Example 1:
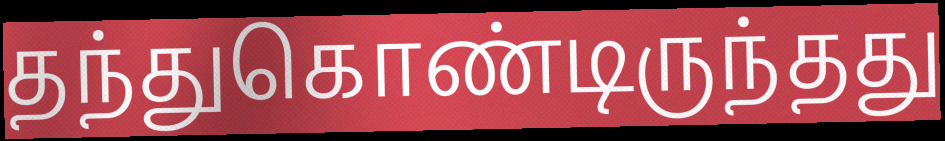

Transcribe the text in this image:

தந்துகொண்டிருந்தது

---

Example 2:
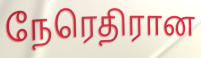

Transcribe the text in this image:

நேரெதிரான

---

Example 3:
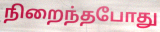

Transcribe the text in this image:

நிறைந்தபோது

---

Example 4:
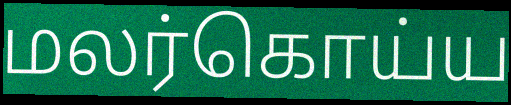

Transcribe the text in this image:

மலர்கொய்ய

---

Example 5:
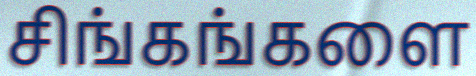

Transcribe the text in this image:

சிங்கங்களை